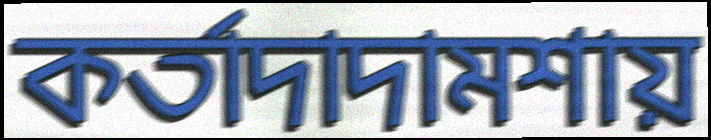
কর্তাদাদামশায়